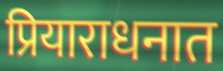
प्रियाराधनात